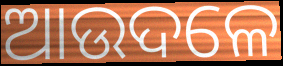
ଆଉଦଳେ